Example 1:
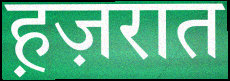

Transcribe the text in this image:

ह़ज़रात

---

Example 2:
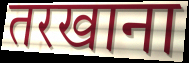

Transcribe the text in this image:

तरखाना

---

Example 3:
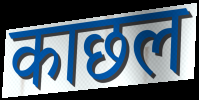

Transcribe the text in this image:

काछल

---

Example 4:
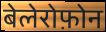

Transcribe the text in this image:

बेलेरोफ़ोन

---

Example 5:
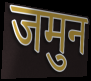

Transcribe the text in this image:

जमुन